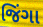
જિંગા